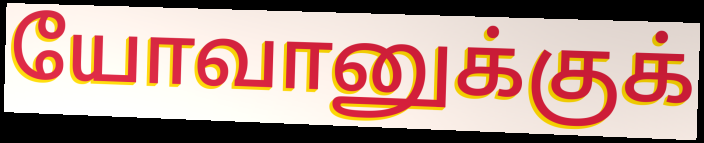
யோவானுக்குக்